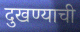
दुखण्याची